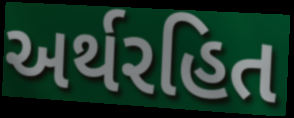
અર્થરહિત